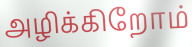
அழிக்கிறோம்